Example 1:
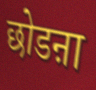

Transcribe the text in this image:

छोडऩा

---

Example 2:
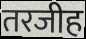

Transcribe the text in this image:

तरजीह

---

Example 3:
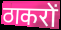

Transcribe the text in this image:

ठाकरों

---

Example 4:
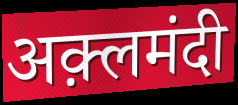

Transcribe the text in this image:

अक़्लमंदी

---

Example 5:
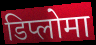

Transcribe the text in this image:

डिप्लोमा